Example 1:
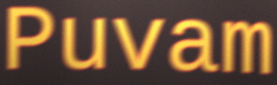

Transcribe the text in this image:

Puvam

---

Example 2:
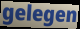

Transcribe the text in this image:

gelegen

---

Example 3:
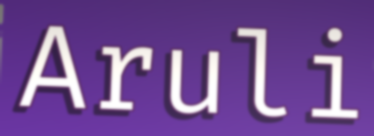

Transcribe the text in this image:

Aruli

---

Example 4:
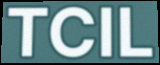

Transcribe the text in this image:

TCIL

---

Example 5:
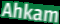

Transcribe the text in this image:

Ahkam